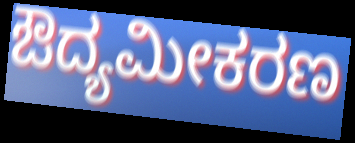
ಔದ್ಯಮೀಕರಣ